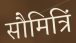
सौमित्रिं